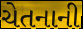
ચેતનાની